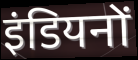
इंडियनों